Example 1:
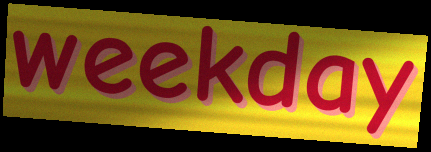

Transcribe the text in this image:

weekday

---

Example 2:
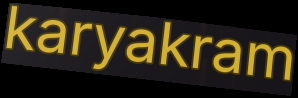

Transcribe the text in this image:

karyakram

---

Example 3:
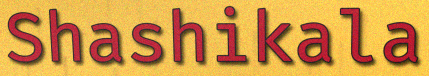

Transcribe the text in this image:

Shashikala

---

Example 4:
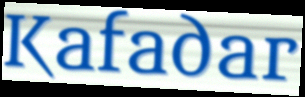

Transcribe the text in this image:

Kafadar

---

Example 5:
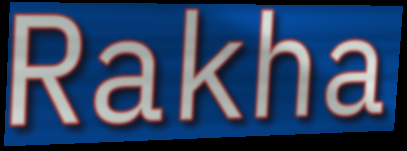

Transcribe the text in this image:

Rakha